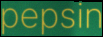
pepsin